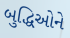
બુદ્ધિઓને